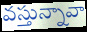
వస్తున్నావా